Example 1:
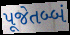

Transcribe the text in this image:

પૂજેતબ્બં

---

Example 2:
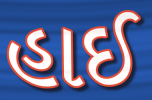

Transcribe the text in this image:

હાઈ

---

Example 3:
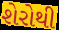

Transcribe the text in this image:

શેરોથી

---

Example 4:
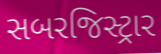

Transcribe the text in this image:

સબરજિસ્ટ્રાર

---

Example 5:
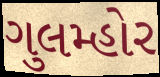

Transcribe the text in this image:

ગુલમ્હોર